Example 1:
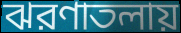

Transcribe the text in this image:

ঝরণাতলায়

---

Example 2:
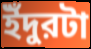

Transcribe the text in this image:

ইঁদুরটা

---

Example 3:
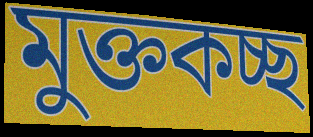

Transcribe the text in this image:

মুক্তকচ্ছ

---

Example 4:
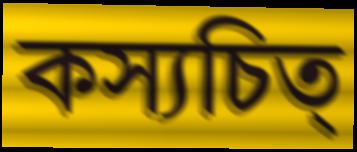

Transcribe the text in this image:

কস্যচিত্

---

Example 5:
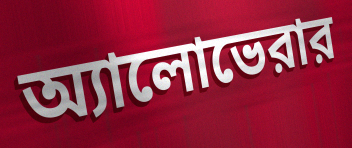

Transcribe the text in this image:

অ্যালোভেরার